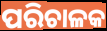
ପରିଚାଳକ